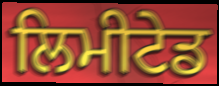
ਲਿਮੀਟੇਡ